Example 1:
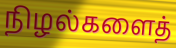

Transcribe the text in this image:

நிழல்களைத்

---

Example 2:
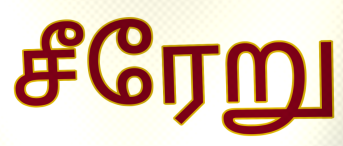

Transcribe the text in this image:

சீரேறு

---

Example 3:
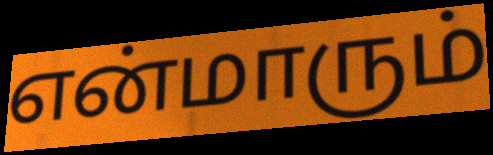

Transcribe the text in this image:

என்மாரும்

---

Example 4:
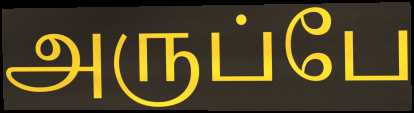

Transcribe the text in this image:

அருப்பே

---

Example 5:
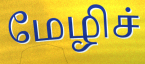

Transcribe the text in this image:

மேழிச்